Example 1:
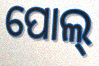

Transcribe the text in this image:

ପୋଲ୍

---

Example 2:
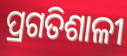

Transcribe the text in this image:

ପ୍ରଗତିଶାଳୀ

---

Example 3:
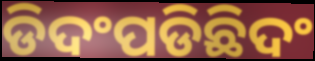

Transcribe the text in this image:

ଡିଦଂପଡିଛିଦଂ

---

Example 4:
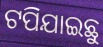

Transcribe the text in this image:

ଟପିଯାଇଛୁ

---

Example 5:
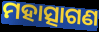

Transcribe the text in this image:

ମହାତ୍ସାଗଣ